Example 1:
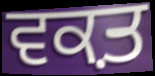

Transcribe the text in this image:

ਵਕ਼ਤ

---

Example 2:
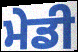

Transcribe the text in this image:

ਮੇਡੀ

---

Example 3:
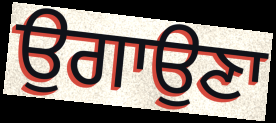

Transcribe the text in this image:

ਉਗਾਉਣਾ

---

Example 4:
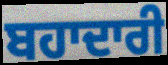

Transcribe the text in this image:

ਬਹਾਦਾਰੀ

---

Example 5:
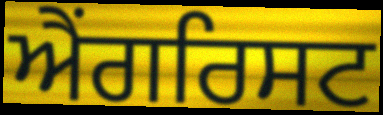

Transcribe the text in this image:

ਐਂਗਰਿਸਟ